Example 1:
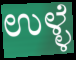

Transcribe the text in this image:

ಉಳ್ಳೆ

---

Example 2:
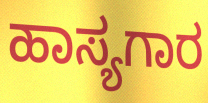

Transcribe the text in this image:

ಹಾಸ್ಯಗಾರ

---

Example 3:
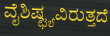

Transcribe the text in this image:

ವೈಶಿಷ್ಟ್ಯವಿರುತ್ತದೆ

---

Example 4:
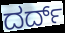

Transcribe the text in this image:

ದರ್ದ್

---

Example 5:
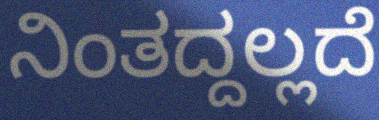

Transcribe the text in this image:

ನಿಂತದ್ದಲ್ಲದೆ